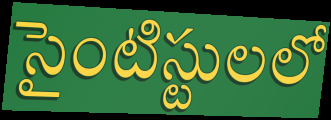
సైంటిస్టులలో